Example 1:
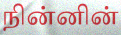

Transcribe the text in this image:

நின்னின்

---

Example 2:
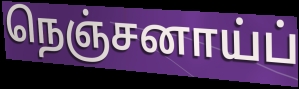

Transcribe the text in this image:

நெஞ்சனாய்ப்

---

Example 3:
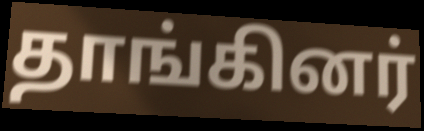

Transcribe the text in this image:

தாங்கினர்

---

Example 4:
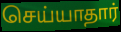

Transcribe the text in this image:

செய்யாதார்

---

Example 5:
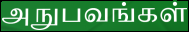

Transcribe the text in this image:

அநுபவங்கள்